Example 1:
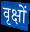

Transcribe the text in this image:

वृक्षों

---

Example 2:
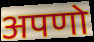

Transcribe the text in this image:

अपणो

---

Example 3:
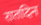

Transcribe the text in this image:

रातदिन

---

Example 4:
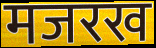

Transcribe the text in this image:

मजरख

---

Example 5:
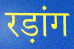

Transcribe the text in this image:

रड़ांग